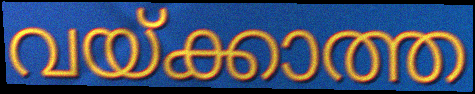
വയ്ക്കാത്ത